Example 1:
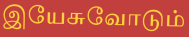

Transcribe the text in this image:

இயேசுவோடும்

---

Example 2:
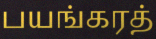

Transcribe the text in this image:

பயங்கரத்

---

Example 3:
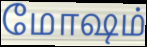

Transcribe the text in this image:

மோஷம்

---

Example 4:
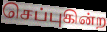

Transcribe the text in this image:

செப்புகின்ற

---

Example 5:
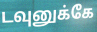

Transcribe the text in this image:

டவுனுக்கே